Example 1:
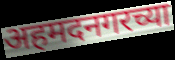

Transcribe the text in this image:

अहमदनगरच्या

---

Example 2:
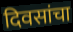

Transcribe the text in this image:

दिवसांचा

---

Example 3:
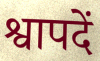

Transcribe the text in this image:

श्वापदें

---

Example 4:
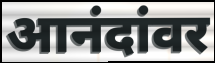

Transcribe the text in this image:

आनंदांवर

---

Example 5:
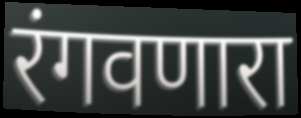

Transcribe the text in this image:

रंगवणारा